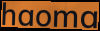
haoma